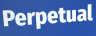
Perpetual